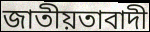
জাতীয়তাবাদী